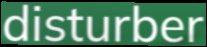
disturber